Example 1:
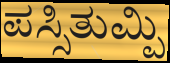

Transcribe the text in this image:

ಪಸ್ಸಿತುಮ್ಪಿ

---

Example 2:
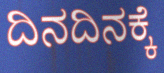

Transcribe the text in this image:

ದಿನದಿನಕ್ಕೆ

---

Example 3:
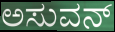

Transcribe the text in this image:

ಅಸುವನ್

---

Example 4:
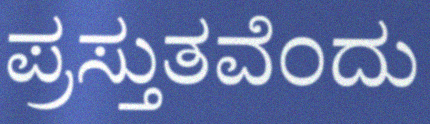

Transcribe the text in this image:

ಪ್ರಸ್ತುತವೆಂದು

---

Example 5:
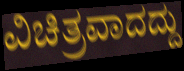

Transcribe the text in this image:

ವಿಚಿತ್ರವಾದದ್ದು